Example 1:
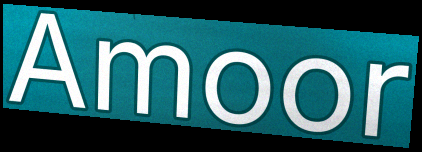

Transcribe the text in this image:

Amoor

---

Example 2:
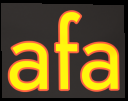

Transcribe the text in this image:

afa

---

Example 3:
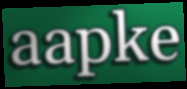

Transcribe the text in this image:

aapke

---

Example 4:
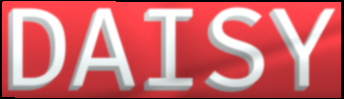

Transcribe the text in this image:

DAISY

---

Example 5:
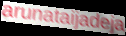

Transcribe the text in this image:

arunataijadeja